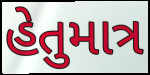
હેતુમાત્ર